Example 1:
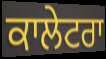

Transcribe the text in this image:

ਕਾਲੇਟਰਾ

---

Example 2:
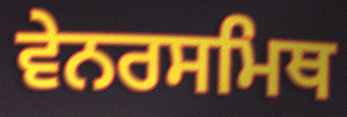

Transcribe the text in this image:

ਵੇਨਰਸਮਿਥ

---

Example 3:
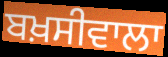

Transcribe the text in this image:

ਬਖ਼ਸੀਵਾਲਾ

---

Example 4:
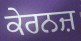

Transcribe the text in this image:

ਕੇਰਨਜ਼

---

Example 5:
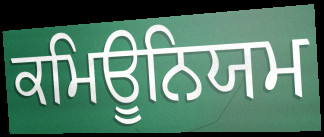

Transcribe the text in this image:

ਕਮਿਊਨਿਯਮ